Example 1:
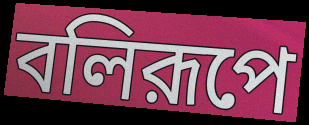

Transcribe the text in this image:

বলিরূপে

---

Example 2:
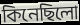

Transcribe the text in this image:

কিনেছিলো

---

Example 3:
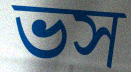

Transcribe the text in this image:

ভস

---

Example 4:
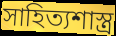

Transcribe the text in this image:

সাহিত্যশাস্ত্র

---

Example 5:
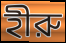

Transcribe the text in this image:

হীরু